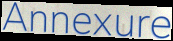
Annexure